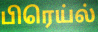
பிரெய்ல்